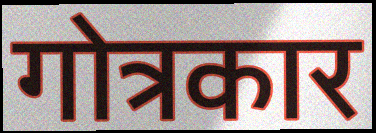
गोत्रकार